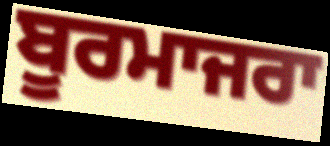
ਬੂਰਮਾਜਰਾ